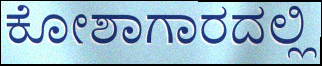
ಕೋಶಾಗಾರದಲ್ಲಿ